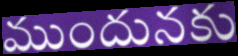
ముందునకు